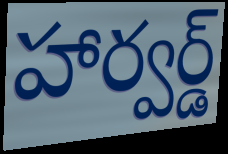
హార్వర్డ్